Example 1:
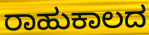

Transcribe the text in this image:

ರಾಹುಕಾಲದ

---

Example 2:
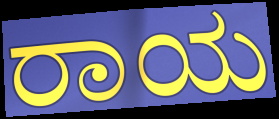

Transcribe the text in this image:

ರಾಯ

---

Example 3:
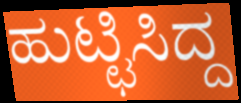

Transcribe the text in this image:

ಹುಟ್ಟಿಸಿದ್ದ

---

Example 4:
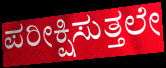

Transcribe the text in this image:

ಪರೀಕ್ಷಿಸುತ್ತಲೇ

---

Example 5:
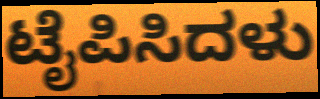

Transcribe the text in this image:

ಟೈಪಿಸಿದಳು